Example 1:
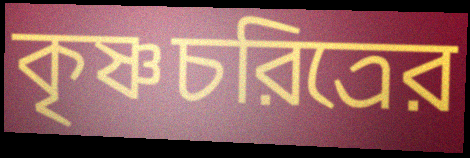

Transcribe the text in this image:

কৃষ্ণচরিত্রের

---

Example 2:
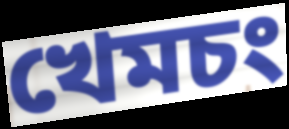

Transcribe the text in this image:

খেমচং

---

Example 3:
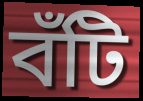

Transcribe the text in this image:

বঁটি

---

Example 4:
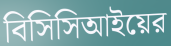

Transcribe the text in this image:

বিসিসিআইয়ের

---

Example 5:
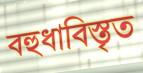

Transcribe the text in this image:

বহুধাবিস্তৃত